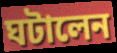
ঘটালেন